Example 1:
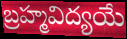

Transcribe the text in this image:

బ్రహ్మవిద్యయే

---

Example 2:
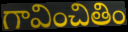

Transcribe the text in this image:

గావించితిం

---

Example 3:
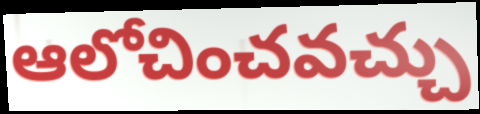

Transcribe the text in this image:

ఆలోచించవచ్చు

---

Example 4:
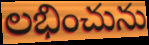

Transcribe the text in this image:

లభించును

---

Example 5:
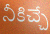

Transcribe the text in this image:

నీకిచ్చే